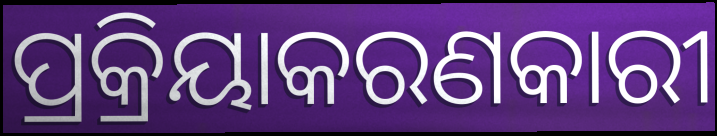
ପ୍ରକ୍ରିୟାକରଣକାରୀ